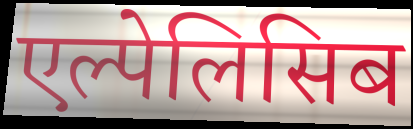
एल्पेलिसिब